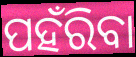
ପହଁରିବା